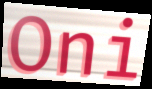
Oni